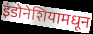
इंडोनेशियामधून